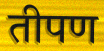
तीपण